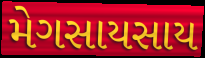
મેગસાયસાય